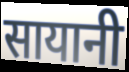
सायानी